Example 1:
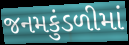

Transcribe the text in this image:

જનમકુંડળીમાં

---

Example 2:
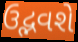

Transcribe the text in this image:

ઉદ્ભવશે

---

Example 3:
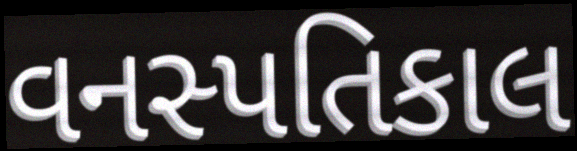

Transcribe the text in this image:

વનસ્પતિકાલ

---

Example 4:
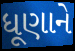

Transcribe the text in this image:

ધૂણાને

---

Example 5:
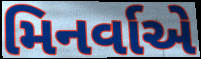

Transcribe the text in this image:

મિનર્વાએ